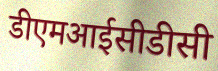
डीएमआईसीडीसी